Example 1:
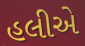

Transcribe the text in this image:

હલીએ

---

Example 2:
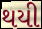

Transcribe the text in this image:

થયી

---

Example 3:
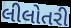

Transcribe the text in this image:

લીલોતરી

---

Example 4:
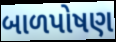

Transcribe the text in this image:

બાળપોષણ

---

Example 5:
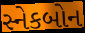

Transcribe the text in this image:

સ્નેકબોન